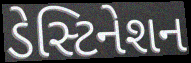
ડેસ્ટિનેશન